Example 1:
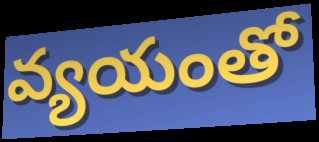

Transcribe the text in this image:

వ్యయంతో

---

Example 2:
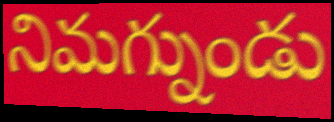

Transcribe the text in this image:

నిమగ్నుండు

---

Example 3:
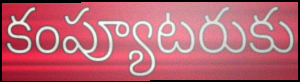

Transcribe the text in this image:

కంప్యూటరుకు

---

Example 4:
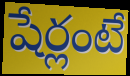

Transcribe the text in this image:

షేర్లంటే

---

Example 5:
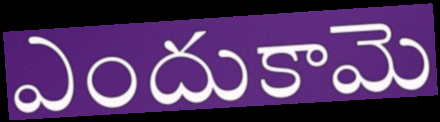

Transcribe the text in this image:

ఎందుకామె